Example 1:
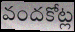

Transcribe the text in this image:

వందకోట్ల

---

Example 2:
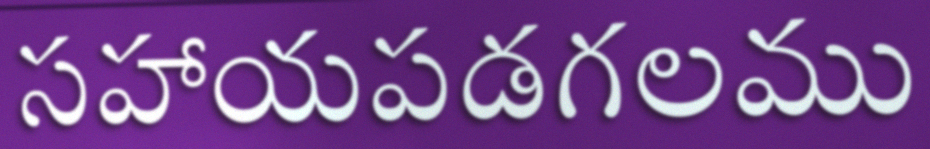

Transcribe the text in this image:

సహాయపడగలము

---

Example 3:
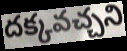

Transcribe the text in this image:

దక్కవచ్చని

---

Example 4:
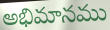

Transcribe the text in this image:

అభిమానము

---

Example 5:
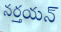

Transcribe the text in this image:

నర్తయన్